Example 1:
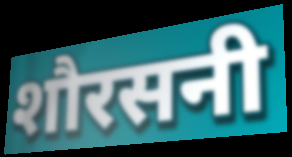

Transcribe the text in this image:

शौरसनी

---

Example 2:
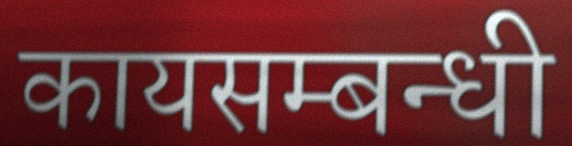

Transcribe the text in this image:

कायसम्बन्धी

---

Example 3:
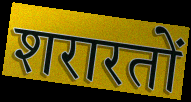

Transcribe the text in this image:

शरारतों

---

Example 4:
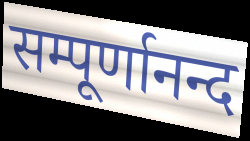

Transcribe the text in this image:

सम्पूर्णानन्द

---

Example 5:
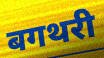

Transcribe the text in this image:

बगथरी